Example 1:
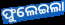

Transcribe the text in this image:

ଫୁଲେଇଲା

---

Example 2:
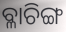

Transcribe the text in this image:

ବ୍ଳାଚିଙ୍ଗ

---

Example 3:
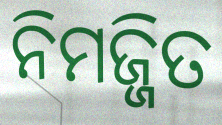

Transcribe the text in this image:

ନିମଜ୍ଜିତ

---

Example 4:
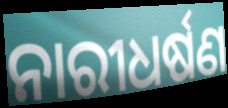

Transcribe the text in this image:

ନାରୀଧର୍ଷଣ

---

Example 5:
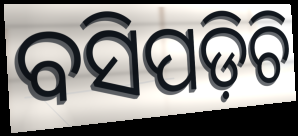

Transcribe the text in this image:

ବସିପଡ଼ିଚି